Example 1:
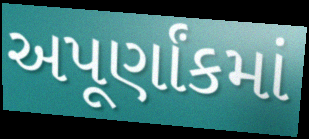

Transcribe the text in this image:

અપૂર્ણાંકમાં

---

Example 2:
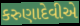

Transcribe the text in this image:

કરુણાદેવીએ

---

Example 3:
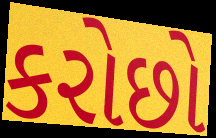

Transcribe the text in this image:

કરોછો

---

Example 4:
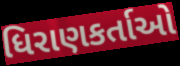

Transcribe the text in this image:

ધિરાણકર્તાઓ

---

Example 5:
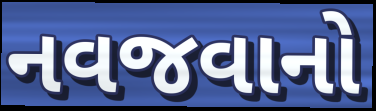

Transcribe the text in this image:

નવજવાનો